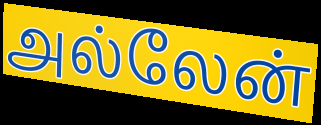
அல்லேன்